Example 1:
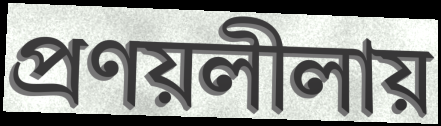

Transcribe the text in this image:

প্রণয়লীলায়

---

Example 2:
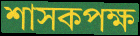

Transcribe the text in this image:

শাসকপক্ষ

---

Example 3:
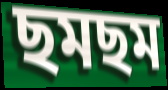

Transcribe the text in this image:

ছমছম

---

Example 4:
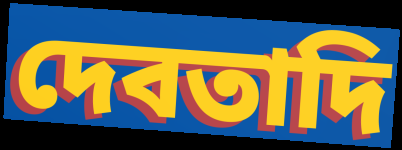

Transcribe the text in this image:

দেবতাদি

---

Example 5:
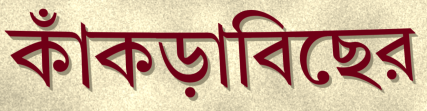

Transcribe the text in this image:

কাঁকড়াবিছের